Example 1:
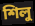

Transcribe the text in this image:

শিলু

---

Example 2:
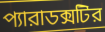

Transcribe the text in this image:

প্যারাডক্সটির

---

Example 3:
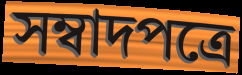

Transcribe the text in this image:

সম্বাদপত্রে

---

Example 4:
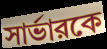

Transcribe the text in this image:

সার্ভারকে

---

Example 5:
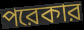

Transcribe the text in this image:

পরেকার